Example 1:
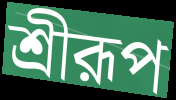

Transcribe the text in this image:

শ্রীরূপ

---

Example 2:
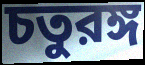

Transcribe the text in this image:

চতুরঙ্গ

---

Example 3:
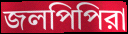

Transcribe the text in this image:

জলপিপিরা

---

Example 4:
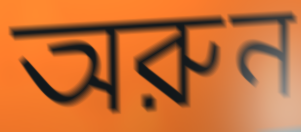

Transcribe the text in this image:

অরুন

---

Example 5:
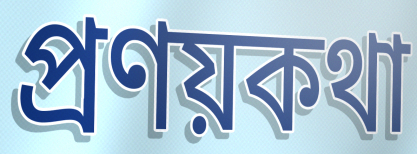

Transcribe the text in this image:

প্রণয়কথা